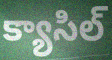
క్యాసిల్